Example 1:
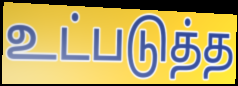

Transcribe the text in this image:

உட்படுத்த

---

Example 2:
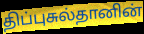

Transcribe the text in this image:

திப்புசுல்தானின்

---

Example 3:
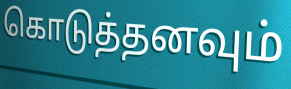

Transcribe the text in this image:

கொடுத்தனவும்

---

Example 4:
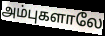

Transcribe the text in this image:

அம்புகளாலே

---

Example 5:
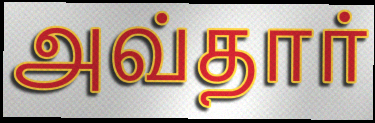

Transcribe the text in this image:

அவ்தார்